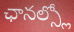
ఛానల్స్లో